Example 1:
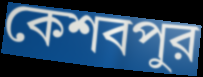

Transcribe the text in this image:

কেশবপুর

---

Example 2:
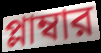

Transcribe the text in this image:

প্লাম্বার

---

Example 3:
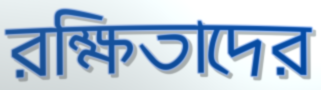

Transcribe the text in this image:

রক্ষিতাদের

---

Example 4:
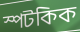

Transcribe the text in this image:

স্পটকিক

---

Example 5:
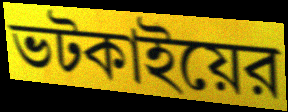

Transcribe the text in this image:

ভটকাইয়ের